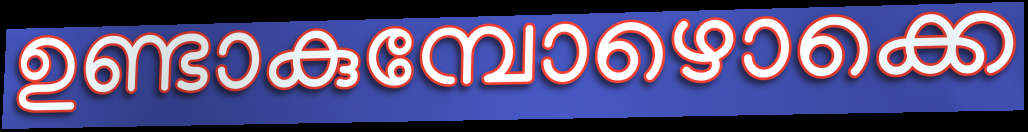
ഉണ്ടാകുമ്പോഴൊക്കെ